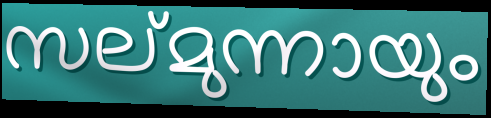
സല്മുന്നായും